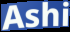
Ashi